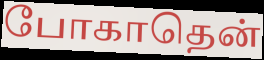
போகாதென்